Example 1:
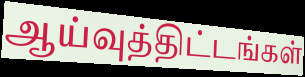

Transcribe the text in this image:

ஆய்வுத்திட்டங்கள்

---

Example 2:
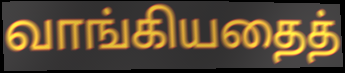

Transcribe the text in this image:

வாங்கியதைத்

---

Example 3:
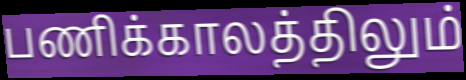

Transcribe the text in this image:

பணிக்காலத்திலும்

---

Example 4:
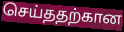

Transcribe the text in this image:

செய்ததற்கான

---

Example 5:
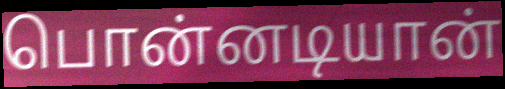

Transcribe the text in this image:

பொன்னடியான்